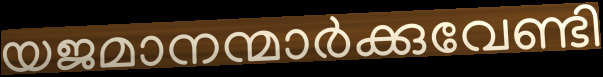
യജമാനന്മാർക്കുവേണ്ടി